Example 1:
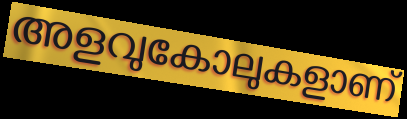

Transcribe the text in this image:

അളവുകോലുകളാണ്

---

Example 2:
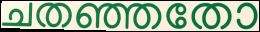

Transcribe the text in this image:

ചതഞ്ഞതോ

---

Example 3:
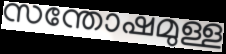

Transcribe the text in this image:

സന്തോഷമുള്ള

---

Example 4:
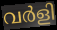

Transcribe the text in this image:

വർളി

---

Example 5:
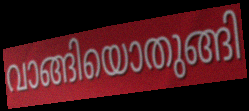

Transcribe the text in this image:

വാങ്ങിയൊതുങ്ങി